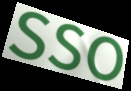
sso